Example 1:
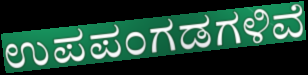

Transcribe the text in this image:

ಉಪಪಂಗಡಗಳಿವೆ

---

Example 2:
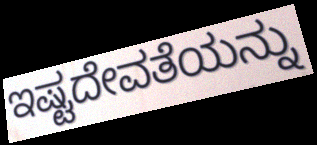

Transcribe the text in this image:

ಇಷ್ಟದೇವತೆಯನ್ನು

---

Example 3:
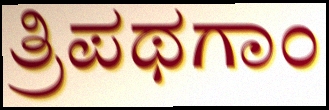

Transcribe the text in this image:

ತ್ರಿಪಥಗಾಂ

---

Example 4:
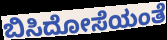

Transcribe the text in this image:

ಬಿಸಿದೋಸೆಯಂತೆ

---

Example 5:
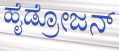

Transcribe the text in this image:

ಹೈಡ್ರೋಜನ್